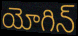
యోగిన్